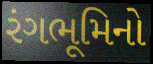
રંગભૂમિનો